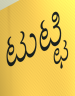
ಟುಟ್ಟಿ